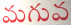
మగువ